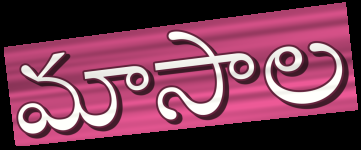
మాసాల